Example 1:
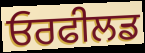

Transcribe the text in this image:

ਓਰਫੀਲਡ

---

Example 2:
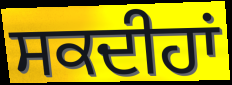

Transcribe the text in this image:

ਸਕਦੀਹਾਂ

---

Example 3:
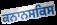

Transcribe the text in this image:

ਕਨਾਨਸਕਿਸ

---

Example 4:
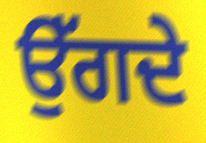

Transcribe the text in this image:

ਉੱਗਦੇ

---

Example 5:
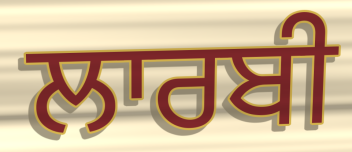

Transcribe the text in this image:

ਲਾਰਬੀ